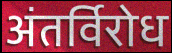
अंतर्विरोध